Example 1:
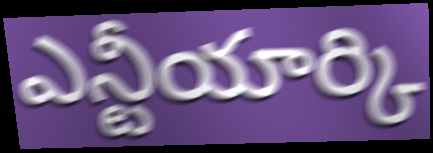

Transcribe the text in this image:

ఎన్టీయార్కి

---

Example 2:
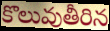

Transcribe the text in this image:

కొలువుతీరిన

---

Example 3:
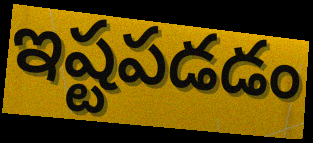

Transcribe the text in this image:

ఇష్టపడడం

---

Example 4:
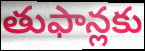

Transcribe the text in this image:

తుఫాన్లకు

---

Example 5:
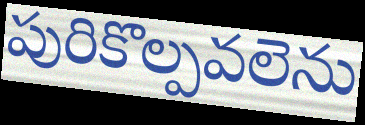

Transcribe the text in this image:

పురికొల్పవలెను